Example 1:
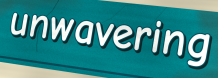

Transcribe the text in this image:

unwavering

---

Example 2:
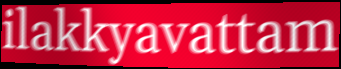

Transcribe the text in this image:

ilakkyavattam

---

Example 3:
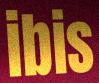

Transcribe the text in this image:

ibis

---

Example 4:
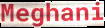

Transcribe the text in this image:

Meghani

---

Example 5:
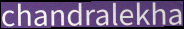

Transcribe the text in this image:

chandralekha